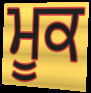
ਮੂਕ